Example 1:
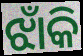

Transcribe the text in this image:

ଝାଁକି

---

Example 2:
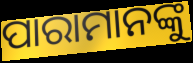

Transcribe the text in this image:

ପାରାମାନଙ୍କୁ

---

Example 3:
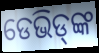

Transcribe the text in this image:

ଡେଭିଡ୍‌ଙ୍କ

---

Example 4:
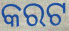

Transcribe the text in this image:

କରଟ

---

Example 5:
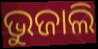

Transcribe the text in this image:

ଭୁଜାଲି